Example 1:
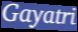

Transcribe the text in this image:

Gayatri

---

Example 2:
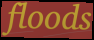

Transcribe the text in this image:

floods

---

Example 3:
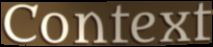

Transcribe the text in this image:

Context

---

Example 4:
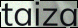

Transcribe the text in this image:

taiza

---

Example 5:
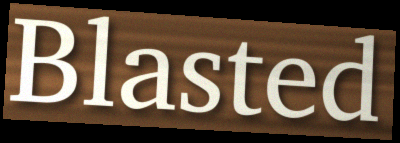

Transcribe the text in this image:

Blasted